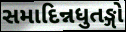
સમાદિન્નધુતઙ્ગો